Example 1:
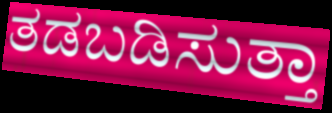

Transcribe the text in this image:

ತಡಬಡಿಸುತ್ತಾ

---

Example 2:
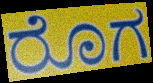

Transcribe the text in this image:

ರೊಗ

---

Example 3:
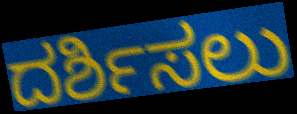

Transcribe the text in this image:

ದರ್ಶಿಸಲು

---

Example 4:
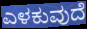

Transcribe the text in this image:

ಎಳಕುವುದೆ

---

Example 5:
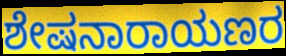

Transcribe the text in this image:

ಶೇಷನಾರಾಯಣರ